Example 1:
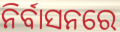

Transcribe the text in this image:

ନିର୍ବାସନରେ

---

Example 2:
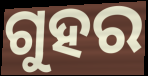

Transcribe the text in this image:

ଗୁହର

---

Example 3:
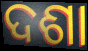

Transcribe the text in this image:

ଦଶା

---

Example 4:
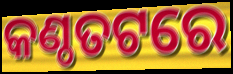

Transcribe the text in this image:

କଣ୍ଠତଟରେ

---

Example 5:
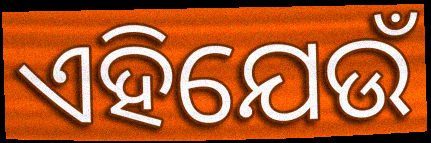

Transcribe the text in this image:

ଏହିଯେଉଁ